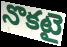
నొకటై